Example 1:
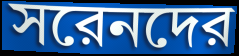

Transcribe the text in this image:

সরেনদের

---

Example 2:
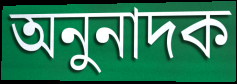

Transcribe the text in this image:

অনুনাদক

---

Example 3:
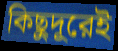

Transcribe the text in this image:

কিছুদূরেই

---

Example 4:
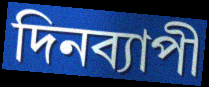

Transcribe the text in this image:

দিনব্যাপী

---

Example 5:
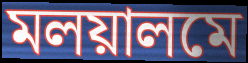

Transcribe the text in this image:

মলয়ালমে